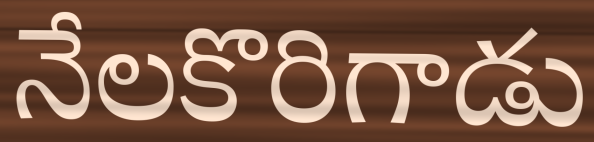
నేలకొరిగాడు